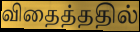
விதைத்ததில்